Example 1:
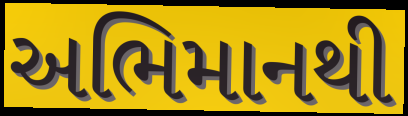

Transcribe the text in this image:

અભિમાનથી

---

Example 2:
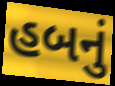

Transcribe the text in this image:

હબનું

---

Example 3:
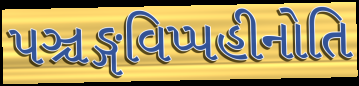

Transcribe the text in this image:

પઞ્ચઙ્ગવિપ્પહીનોતિ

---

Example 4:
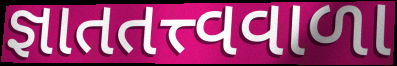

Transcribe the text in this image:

જ્ઞાતતત્ત્વવાળા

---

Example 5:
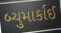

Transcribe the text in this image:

બ્યુમાર્કાઈ